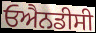
ਓਐਨਡੀਸੀ